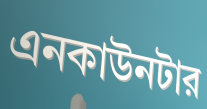
এনকাউনটার